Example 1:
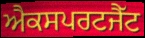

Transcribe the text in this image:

ਐਕਸਪਰਟਜੈੱਟ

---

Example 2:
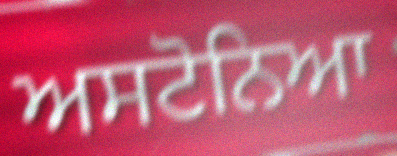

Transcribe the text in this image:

ਅਸਟੋਨਿਆ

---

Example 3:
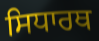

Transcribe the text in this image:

ਸਿਧਾਰਥ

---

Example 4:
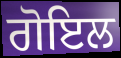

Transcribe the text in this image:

ਗੋਇਲ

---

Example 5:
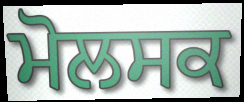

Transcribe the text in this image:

ਮੋਲਸਕ